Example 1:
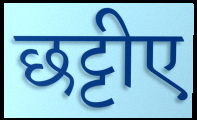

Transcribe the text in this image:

छट्टीए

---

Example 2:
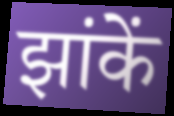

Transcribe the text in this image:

झांकें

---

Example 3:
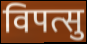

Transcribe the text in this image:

विपत्सु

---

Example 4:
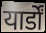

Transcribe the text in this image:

यार्डों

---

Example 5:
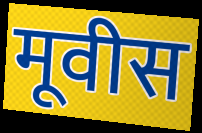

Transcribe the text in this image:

मूवीस